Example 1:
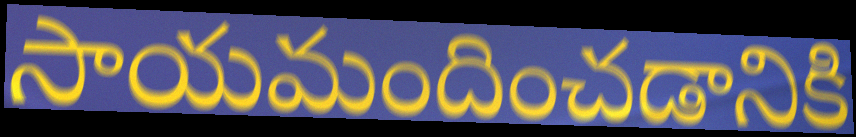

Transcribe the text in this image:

సాయమందించడానికి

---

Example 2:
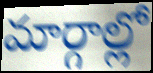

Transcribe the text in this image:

మార్గాల్లో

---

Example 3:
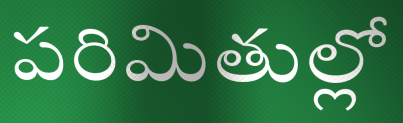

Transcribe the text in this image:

పరిమితుల్లో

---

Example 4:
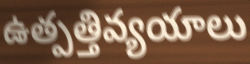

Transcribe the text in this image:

ఉత్పత్తివ్యయాలు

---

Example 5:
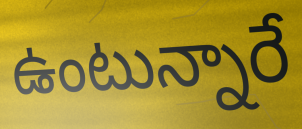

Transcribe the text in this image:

ఉంటున్నారే